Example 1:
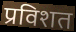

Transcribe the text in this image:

प्रविशत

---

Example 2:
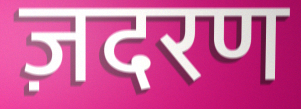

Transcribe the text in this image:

ज़दरण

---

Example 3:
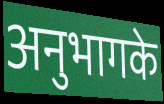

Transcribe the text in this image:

अनुभागके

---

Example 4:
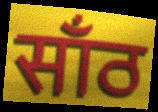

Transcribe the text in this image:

साँठ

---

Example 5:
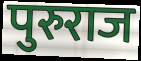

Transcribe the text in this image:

पुरुराज